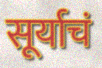
सूर्याचं